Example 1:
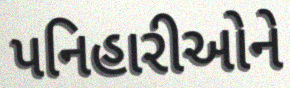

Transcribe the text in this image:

પનિહારીઓને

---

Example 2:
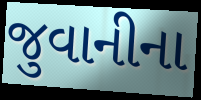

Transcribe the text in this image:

જુવાનીના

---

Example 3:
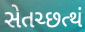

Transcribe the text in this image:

સેતચ્છત્થં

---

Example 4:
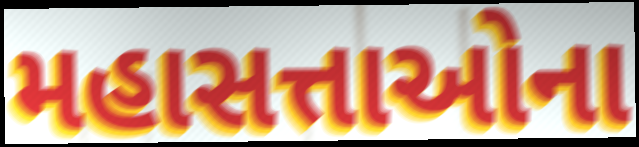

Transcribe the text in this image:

મહાસત્તાઓના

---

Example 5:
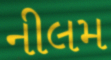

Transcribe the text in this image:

નીલમ